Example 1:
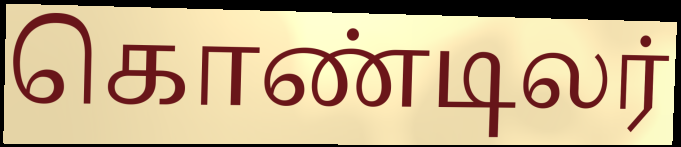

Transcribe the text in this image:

கொண்டிலர்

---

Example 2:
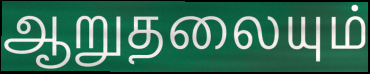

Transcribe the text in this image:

ஆறுதலையும்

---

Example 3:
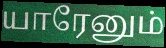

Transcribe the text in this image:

யாரேனும்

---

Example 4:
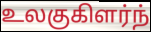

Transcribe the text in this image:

உலகுகிளர்ந்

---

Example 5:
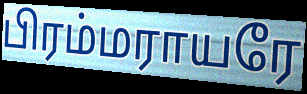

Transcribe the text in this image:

பிரம்மராயரே